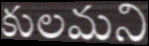
కులమని